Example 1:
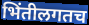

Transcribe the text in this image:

भिंतीलगतच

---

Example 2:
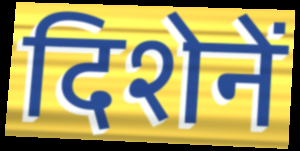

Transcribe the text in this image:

दिशेनें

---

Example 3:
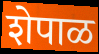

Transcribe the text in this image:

शेपाळ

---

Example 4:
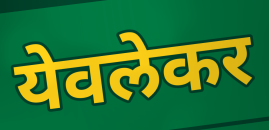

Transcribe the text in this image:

येवलेकर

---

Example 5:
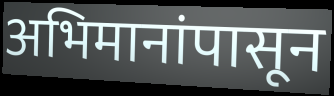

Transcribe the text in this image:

अभिमानांपासून